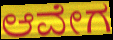
ಆವೇಗ